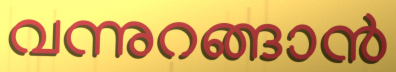
വന്നുറങ്ങാൻ